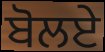
ਬੋਲਏ